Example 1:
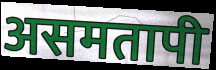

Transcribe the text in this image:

असमतापी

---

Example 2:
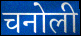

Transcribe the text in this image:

चनोली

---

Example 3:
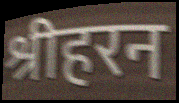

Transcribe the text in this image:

श्रीहरन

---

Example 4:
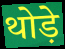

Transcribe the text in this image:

थोड़े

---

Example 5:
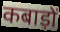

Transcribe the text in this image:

कबाड़ों